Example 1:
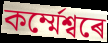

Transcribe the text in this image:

কৰ্ম্মেশ্বৰে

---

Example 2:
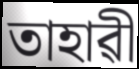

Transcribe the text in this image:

তাহাৱী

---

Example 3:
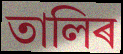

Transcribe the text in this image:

তালিৰ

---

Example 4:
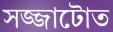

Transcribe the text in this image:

সজ্জাটোত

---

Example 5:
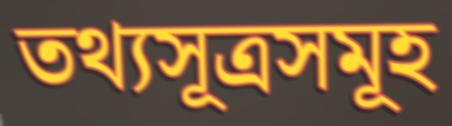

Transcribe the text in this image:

তথ্যসূত্ৰসমূহ